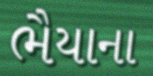
ભૈયાના